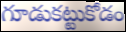
గూడుకట్టుకోడం